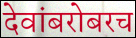
देवांबरोबरच